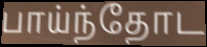
பாய்ந்தோட